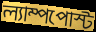
ল্যাম্পপোস্ট